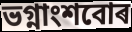
ভগ্নাংশবোৰ